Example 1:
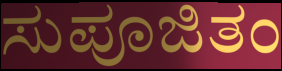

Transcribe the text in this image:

ಸುಪೂಜಿತಂ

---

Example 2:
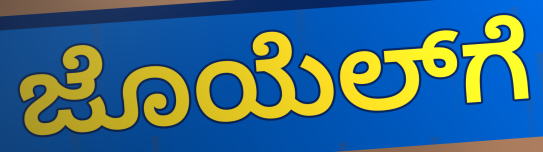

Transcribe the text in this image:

ಜೊಯೆಲ್‌ಗೆ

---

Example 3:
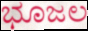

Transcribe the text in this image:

ಭೂಜಲ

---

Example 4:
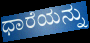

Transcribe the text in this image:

ಧಾರೆಯನ್ನು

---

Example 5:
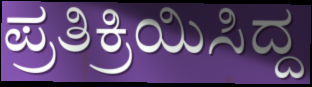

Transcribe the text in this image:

ಪ್ರತಿಕ್ರಿಯಿಸಿದ್ದ